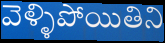
వెళ్ళిపోయితిని